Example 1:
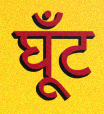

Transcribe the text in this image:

घूँट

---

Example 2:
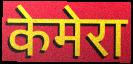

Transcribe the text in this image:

केमेरा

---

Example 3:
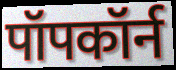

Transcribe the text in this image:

पॉपकॉर्न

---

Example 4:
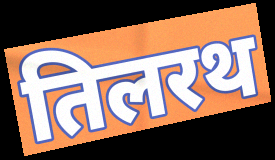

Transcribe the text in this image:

तिलरथ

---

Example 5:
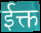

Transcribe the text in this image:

ईक्त